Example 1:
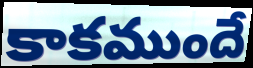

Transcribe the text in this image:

కాకముందే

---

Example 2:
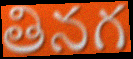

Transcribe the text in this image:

తినగ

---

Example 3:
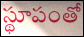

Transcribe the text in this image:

స్థూపంతో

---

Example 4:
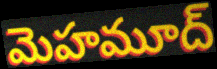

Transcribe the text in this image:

మెహమూద్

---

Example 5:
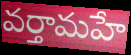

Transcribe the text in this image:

వర్తామహే